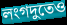
লংগদুতেও